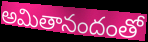
అమితానందంతో